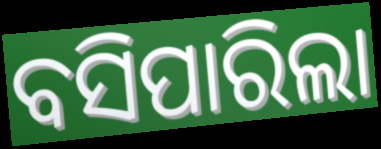
ବସିପାରିଲା